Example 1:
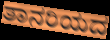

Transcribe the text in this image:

ತಾನರಿಯದ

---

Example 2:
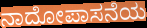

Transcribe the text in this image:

ನಾದೋಪಾಸನೆಯ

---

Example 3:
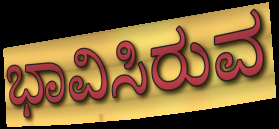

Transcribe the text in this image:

ಭಾವಿಸಿರುವ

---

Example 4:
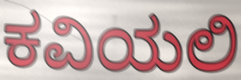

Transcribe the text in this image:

ಕವಿಯಲಿ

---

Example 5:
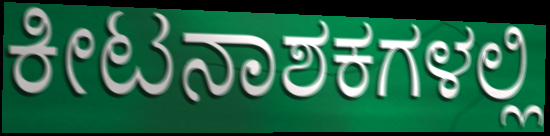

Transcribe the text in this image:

ಕೀಟನಾಶಕಗಳಲ್ಲಿ